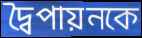
দ্বৈপায়নকে